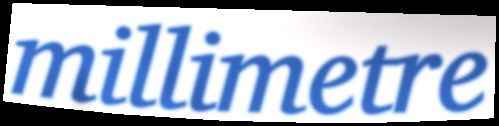
millimetre